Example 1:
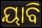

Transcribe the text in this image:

ୟାବି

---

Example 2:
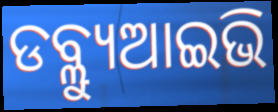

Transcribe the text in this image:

ଡବ୍ଲ୍ୟୁଆଇଭି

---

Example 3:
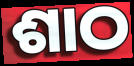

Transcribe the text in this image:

ଶାଠ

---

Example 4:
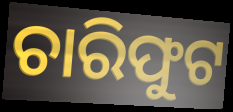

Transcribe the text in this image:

ଚାରିଫୁଟ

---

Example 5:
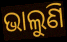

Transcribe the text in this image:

ଭାଲୁଣି